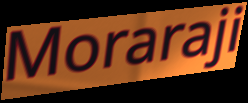
Moraraji